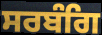
ਸਰਬੰਗਿ